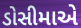
ડોસીમાએ